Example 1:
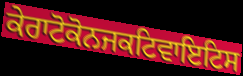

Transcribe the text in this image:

ਕੇਰਾਟੋਕੋਨਜਕਟਿਵਾਇਟਿਸ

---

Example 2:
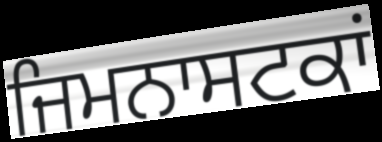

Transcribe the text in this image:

ਜਿਮਨਾਸਟਕਾਂ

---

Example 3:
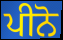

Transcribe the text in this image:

ਪੀਨੋ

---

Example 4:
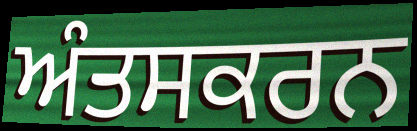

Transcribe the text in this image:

ਅੰਤਸਕਰਨ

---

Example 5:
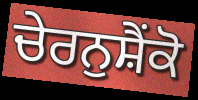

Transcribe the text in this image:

ਚੇਰਨੁਸ਼ੈਂਕੋ